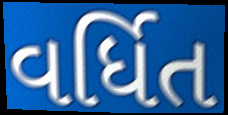
વર્ધિત